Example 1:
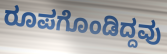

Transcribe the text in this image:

ರೂಪಗೊಂಡಿದ್ದವು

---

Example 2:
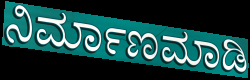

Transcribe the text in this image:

ನಿರ್ಮಾಣಮಾಡಿ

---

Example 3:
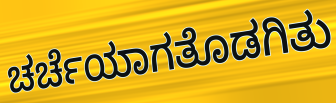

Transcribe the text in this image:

ಚರ್ಚೆಯಾಗತೊಡಗಿತು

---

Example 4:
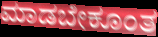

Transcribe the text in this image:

ಮಾಡಬೇಕೂಂತ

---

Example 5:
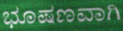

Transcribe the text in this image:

ಭೂಷಣವಾಗಿ